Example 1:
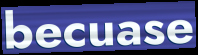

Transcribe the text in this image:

becuase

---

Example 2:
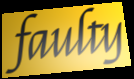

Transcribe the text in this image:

faulty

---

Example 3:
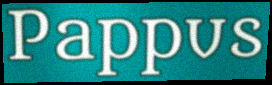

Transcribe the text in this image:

Pappus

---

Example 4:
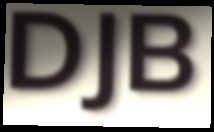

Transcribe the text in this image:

DJB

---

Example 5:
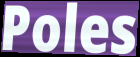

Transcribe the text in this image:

Poles